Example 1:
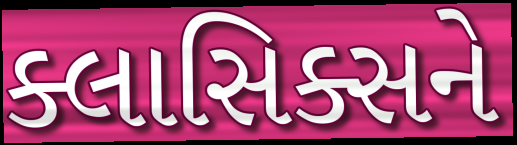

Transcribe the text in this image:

ક્લાસિક્સને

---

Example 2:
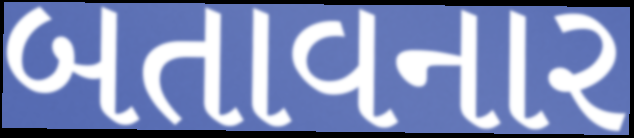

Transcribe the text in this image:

બતાવનાર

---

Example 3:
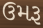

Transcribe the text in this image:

ઉમરૂ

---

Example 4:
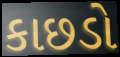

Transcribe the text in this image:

કાછડો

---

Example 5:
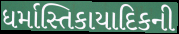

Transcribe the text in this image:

ધર્માસ્તિકાયાદિકની